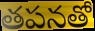
తపనతో